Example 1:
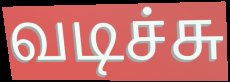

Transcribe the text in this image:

வடிச்சு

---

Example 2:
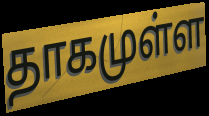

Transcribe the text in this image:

தாகமுள்ள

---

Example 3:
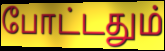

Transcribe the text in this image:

போட்டதும்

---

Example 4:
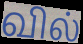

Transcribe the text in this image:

வில்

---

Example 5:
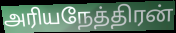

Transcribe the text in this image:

அரியநேத்திரன்